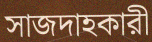
সাজদাহকারী